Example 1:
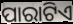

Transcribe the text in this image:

ପାରାଟିଏ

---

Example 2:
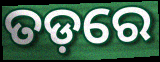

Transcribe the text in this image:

ତଡ଼ରେ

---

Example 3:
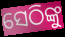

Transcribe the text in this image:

ସେଠିଙ୍କୁ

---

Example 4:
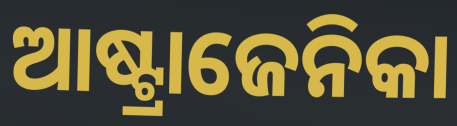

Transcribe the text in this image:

ଆଷ୍ଟ୍ରାଜେନିକା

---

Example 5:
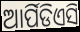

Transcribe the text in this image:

ଆର୍ପିଡିଏସି